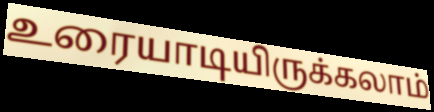
உரையாடியிருக்கலாம்